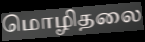
மொழிதலை